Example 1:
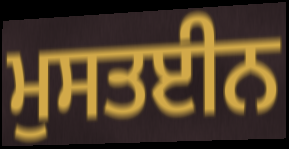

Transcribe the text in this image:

ਮੁਸਤਈਨ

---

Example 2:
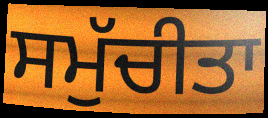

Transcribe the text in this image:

ਸਮੁੱਚੀਤਾ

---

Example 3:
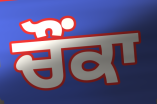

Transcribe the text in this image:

ਚੌਂਕਾ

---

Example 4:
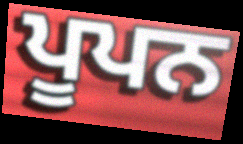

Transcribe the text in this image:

ਪੂਪਨ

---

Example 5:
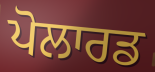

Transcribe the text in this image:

ਪੋਲਾਰਡ